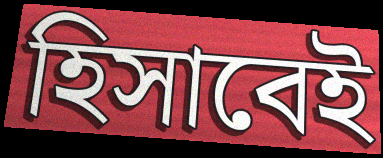
হিসাবেই